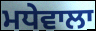
ਮਧੇਵਾਲਾ